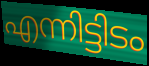
എന്നിട്ടിടം